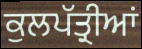
ਕੁਲਪੱਤ੍ਰੀਆਂ